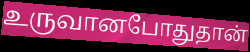
உருவானபோதுதான்